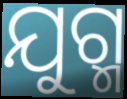
ଯୁଗ୍ମ